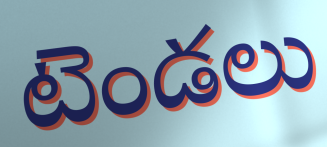
టెండలు